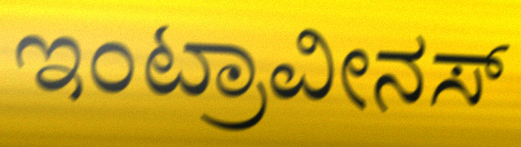
ಇಂಟ್ರಾವೀನಸ್